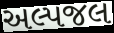
અલ્પજલ